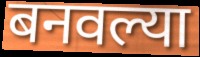
बनवल्या